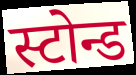
स्टोन्ड